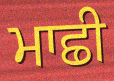
ਮਾਛੀ